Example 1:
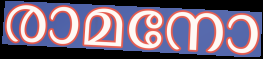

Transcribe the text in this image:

രാമനോ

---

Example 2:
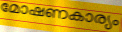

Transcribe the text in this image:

മോഷണകാര്യം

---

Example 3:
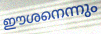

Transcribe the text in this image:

ഈശനെന്നും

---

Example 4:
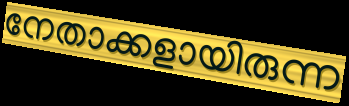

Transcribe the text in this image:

നേതാക്കളായിരുന്ന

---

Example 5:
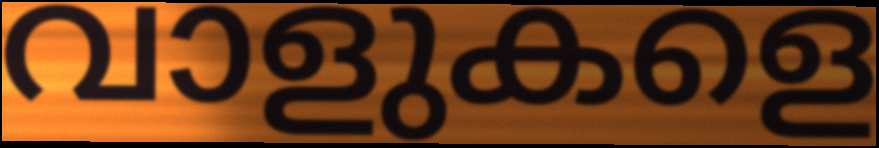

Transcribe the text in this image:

വാളുകളെ